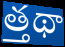
త్తథా